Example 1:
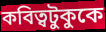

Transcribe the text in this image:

কবিত্বটুকুকে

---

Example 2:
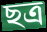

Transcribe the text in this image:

ছত্র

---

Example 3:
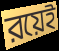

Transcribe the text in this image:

রয়েই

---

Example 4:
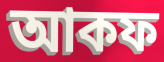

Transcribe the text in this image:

আকফ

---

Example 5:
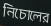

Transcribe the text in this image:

নিচোলের